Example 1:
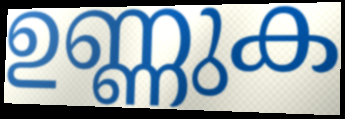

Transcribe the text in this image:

ഉണ്ണുക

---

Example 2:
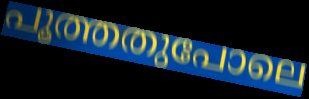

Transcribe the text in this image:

പൂത്തതുപോലെ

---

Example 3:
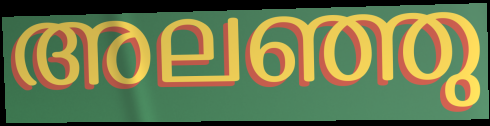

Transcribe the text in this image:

അലഞ്ഞു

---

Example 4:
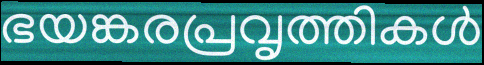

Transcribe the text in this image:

ഭയങ്കരപ്രവൃത്തികൾ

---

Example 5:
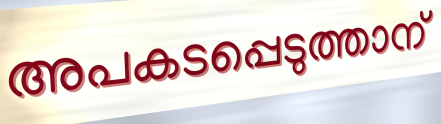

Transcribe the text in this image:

അപകടപ്പെടുത്താന്